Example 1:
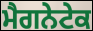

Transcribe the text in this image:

ਮੈਗਨੇਟੇਕ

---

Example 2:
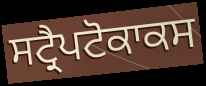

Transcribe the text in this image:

ਸਟ੍ਰੈਪਟੋਕਾਕਸ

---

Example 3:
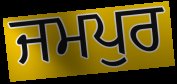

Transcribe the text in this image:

ਜਮਪੁਰ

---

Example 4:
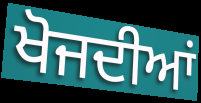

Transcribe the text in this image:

ਖੋਜਦੀਆਂ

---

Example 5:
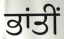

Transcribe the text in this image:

ਭਾਂਤੀਂ